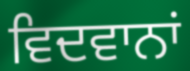
ਵਿਦਵਾਨਾਂ